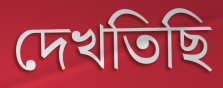
দেখতিছি